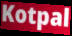
Kotpal